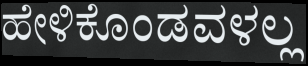
ಹೇಳಿಕೊಂಡವಳಲ್ಲ